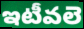
ఇటీవలె